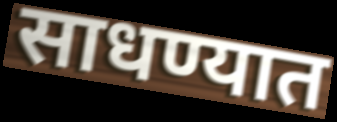
साधण्यात